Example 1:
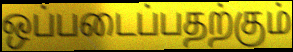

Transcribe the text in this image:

ஒப்படைப்பதற்கும்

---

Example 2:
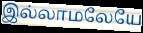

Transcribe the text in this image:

இல்லாமலேயே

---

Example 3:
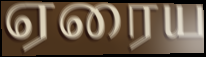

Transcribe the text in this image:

ஏரைய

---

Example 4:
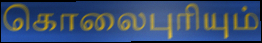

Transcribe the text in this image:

கொலைபுரியும்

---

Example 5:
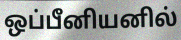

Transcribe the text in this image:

ஒப்பீனியனில்